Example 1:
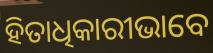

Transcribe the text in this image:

ହିତାଧିକାରୀଭାବେ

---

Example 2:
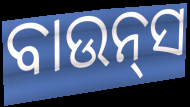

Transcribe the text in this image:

ବାଉନ୍‍ସ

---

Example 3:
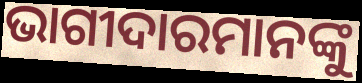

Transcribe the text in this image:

ଭାଗୀଦାରମାନଙ୍କୁ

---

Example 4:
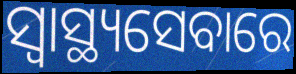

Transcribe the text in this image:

ସ୍ୱାସ୍ଥ୍ୟସେବାରେ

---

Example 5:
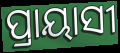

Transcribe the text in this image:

ପ୍ରାୟାସୀ